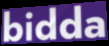
bidda